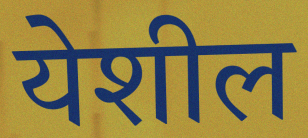
येशील